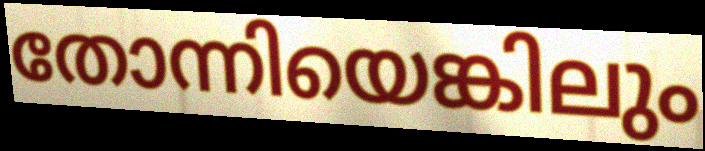
തോന്നിയെങ്കിലും